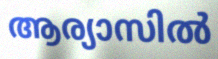
ആര്യാസിൽ